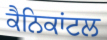
ਕੈਨਿਕਾਂਟਲ